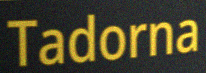
Tadorna